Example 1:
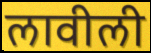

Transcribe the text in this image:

लावीली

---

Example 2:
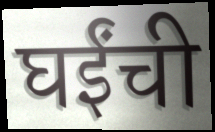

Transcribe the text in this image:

घईंची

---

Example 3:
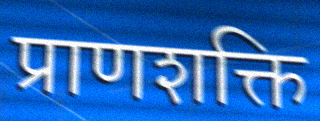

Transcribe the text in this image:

प्राणशक्ति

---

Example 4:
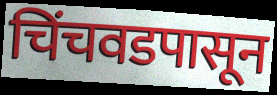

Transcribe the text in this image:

चिंचवडपासून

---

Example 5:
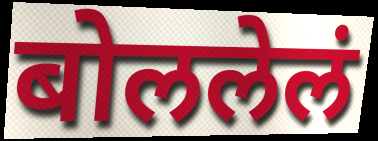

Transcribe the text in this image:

बोललेलं